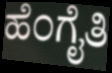
ಹೆಂಗೈತಿ